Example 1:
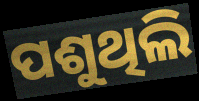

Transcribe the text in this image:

ପଶୁଥିଲି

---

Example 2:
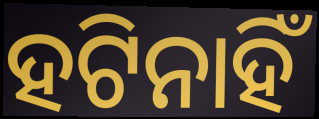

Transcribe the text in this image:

ହଟିନାହିଁ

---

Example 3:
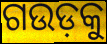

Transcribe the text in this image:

ଗଉଡ଼କୁ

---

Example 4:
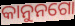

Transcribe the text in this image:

କାନୁନଗୋ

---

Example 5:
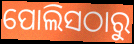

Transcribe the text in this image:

ପୋଲିସଠାରୁ